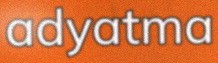
adyatma